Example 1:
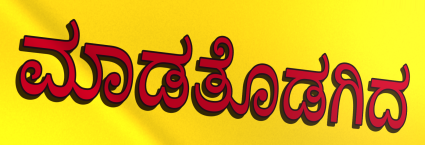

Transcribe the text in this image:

ಮಾಡತೊಡಗಿದ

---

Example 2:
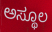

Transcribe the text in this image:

ಅಸ್ಥೂಲ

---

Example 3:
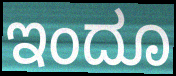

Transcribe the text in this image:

ಇಂದೂ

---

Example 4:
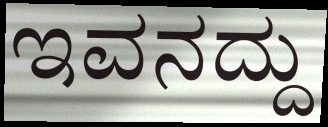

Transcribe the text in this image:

ಇವನದ್ದು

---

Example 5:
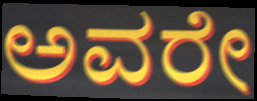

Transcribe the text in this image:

ಅವರೇ